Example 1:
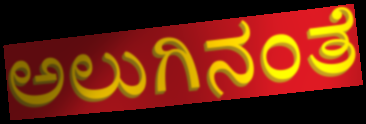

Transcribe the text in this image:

ಅಲುಗಿನಂತೆ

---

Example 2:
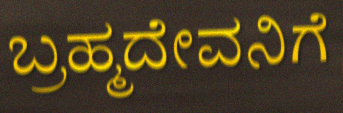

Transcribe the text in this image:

ಬ್ರಹ್ಮದೇವನಿಗೆ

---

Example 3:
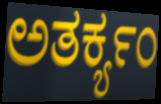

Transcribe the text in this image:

ಅತರ್ಕ್ಯಂ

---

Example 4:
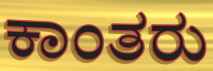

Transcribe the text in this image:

ಕಾಂತರು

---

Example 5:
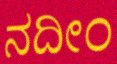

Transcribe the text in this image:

ನದೀಂ